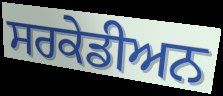
ਸਰਕੇਡੀਅਨ